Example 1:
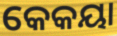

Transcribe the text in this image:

କେକୟା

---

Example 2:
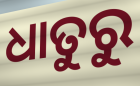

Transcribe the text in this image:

ଧାତୁରୁ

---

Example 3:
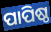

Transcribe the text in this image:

ପାପିଷ୍ଠ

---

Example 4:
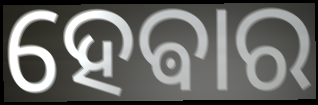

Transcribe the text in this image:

ହେଵାର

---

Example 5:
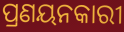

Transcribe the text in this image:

ପ୍ରଣୟନକାରୀ